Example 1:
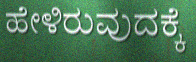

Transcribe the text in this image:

ಹೇಳಿರುವುದಕ್ಕೆ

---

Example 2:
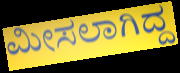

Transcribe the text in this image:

ಮೀಸಲಾಗಿದ್ದ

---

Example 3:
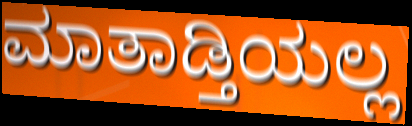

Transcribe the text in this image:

ಮಾತಾಡ್ತಿಯಲ್ಲ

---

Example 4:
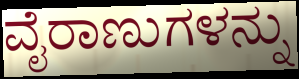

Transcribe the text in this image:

ವೈರಾಣುಗಳನ್ನು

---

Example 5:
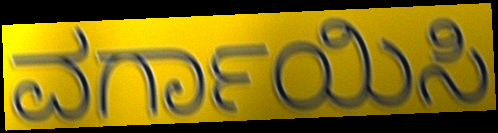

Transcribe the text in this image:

ವರ್ಗಾಯಿಸಿ